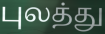
புலத்து